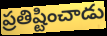
ప్రతిష్టించాడు